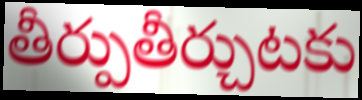
తీర్పుతీర్చుటకు